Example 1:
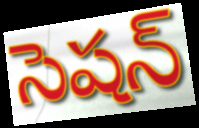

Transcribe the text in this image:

సెషన్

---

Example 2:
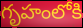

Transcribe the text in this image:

గృహంలోకి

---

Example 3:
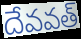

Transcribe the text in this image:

దేవవత్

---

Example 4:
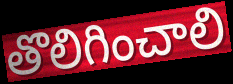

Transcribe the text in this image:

తొలిగించాలి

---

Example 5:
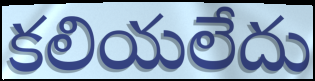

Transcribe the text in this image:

కలియలేదు